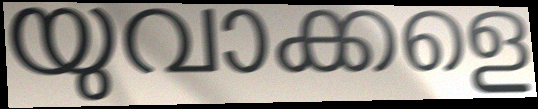
യുവാക്കളെ